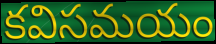
కవిసమయం